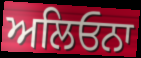
ਅਲਿਓਨਾ